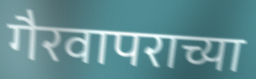
गैरवापराच्या